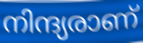
നിന്ദ്യരാണ്